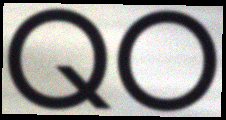
QO